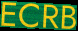
ECRB